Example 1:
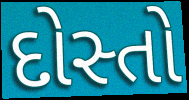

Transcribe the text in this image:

દોસ્તો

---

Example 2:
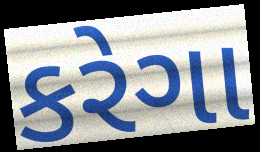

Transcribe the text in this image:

કરેગા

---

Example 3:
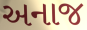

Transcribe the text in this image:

અનાજ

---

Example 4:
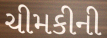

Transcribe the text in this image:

ચીમકીની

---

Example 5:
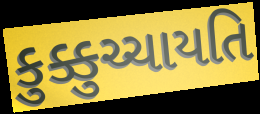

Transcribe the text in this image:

કુક્કુચ્ચાયતિ